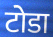
टोडा